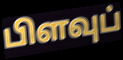
பிளவுப்